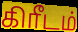
கிரீடம்